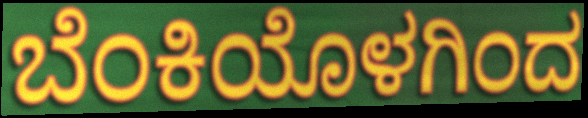
ಬೆಂಕಿಯೊಳಗಿಂದ